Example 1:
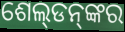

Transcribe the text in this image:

ଶେଲ୍‌ଡନ୍‌ଙ୍କର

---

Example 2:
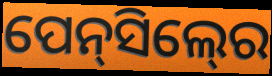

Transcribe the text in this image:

ପେନ୍‍ସିଲ୍‍ରେ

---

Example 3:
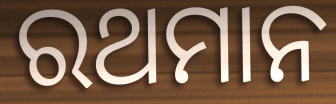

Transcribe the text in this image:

ରଥମାନ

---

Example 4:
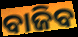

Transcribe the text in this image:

ବାଜିବ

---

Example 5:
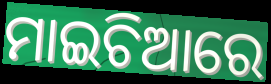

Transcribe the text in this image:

ମାଇଚିଆରେ